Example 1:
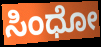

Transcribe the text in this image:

ಸಿಂಧೋ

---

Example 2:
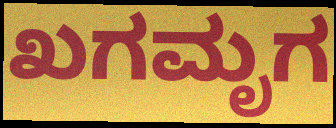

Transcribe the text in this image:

ಖಗಮೃಗ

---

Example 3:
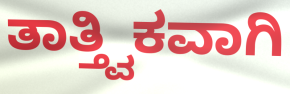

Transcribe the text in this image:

ತಾತ್ತ್ವಿಕವಾಗಿ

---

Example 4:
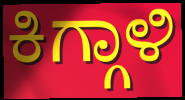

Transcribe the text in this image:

ಕಿಗ್ಗಾಳಿ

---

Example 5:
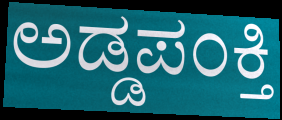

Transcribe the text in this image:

ಅಡ್ಡಪಂಕ್ತಿ